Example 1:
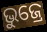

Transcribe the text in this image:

ଭୁଜ୍ରେ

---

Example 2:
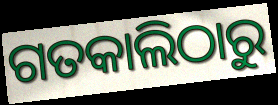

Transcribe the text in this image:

ଗତକାଲିଠାରୁ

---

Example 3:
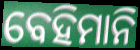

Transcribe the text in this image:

ବେହିମାନି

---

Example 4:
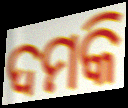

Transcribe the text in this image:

ଦମକି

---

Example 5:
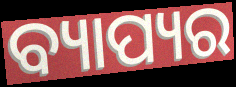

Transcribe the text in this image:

ବ୍ୟାପ୍ୟର